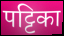
पट्टिका